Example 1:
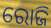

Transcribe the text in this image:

ରୋଜି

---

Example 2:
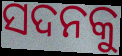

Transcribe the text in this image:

ସଦନକୁ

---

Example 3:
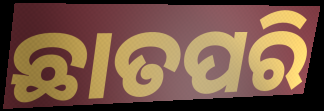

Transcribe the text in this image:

ଛାତପରି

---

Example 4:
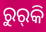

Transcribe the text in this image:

ରୁର୍‍କି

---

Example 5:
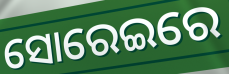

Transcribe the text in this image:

ସୋରେଇରେ